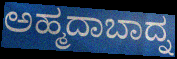
ಅಹ್ಮದಾಬಾದ್ನ